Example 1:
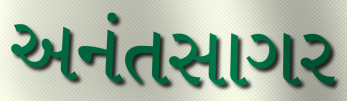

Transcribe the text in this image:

અનંતસાગર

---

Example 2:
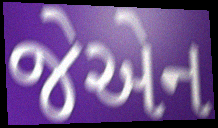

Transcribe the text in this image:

જેએન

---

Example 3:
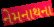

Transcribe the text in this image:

નેમનાથના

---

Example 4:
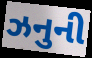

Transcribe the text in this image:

ઝનુની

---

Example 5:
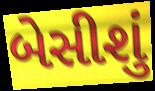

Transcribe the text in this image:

બેસીશું